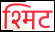
श्मिट